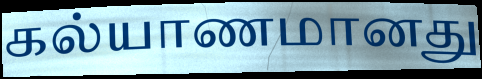
கல்யாணமானது